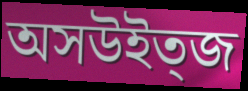
অসউইত্জ